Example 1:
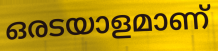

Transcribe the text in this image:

ഒരടയാളമാണ്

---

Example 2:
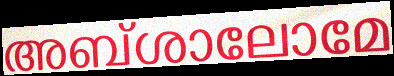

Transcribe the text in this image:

അബ്ശാലോമേ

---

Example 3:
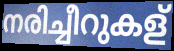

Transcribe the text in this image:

നരിച്ചീറുകള്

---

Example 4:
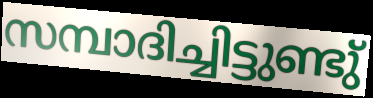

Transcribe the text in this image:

സമ്പാദിച്ചിട്ടുണ്ടു്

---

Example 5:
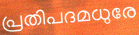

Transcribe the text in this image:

പ്രതിപദമധുരേ